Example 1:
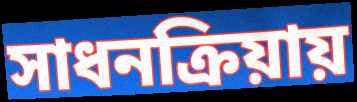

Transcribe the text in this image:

সাধনক্রিয়ায়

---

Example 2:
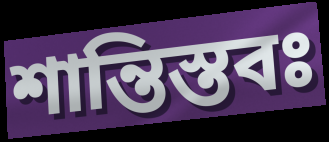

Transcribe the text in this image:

শান্তিস্তবঃ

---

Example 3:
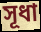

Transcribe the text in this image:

সূধা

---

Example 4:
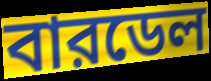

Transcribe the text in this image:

বারডেল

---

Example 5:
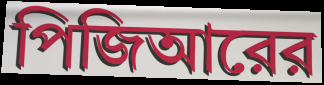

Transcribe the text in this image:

পিজিআরের